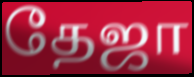
தேஜா